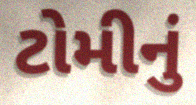
ટોમીનું